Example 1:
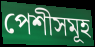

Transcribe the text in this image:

পেশীসমূহ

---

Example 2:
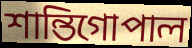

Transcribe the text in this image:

শান্তিগোপাল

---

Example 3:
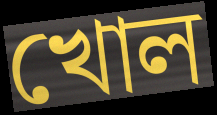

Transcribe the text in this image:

খোল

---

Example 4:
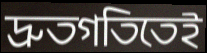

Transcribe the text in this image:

দ্রুতগতিতেই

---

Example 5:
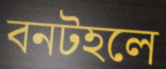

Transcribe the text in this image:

বনটহলে